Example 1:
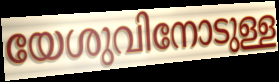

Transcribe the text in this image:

യേശുവിനോടുള്ള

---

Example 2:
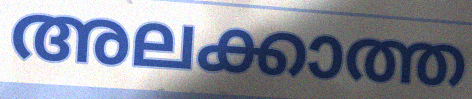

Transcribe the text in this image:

അലക്കാത്ത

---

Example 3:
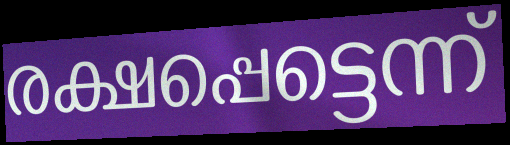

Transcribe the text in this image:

രക്ഷപ്പെട്ടെന്ന്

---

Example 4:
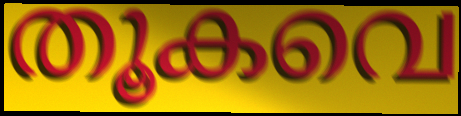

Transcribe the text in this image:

തൂകവെ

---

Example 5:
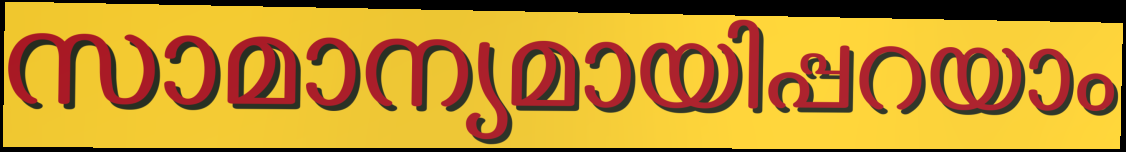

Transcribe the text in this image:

സാമാന്യമായിപ്പറയാം